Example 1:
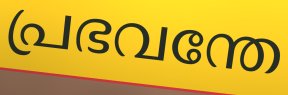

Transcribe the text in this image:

പ്രഭവന്തേ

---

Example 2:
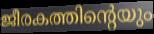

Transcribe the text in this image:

ജീരകത്തിന്റെയും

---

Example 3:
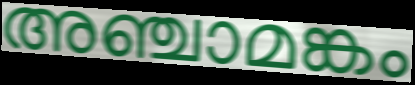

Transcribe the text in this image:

അഞ്ചാമങ്കം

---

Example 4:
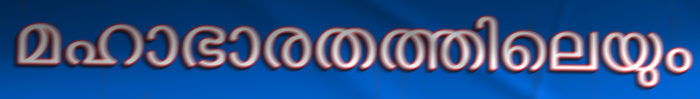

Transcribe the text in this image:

മഹാഭാരതത്തിലെയും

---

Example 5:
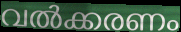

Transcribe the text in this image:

വൽക്കരണം